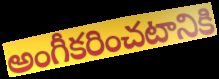
అంగీకరించటానికి